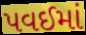
પવઈમાં